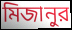
মিজানুর